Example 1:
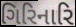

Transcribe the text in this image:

ગિરિનારિ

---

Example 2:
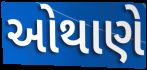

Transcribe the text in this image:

ઓથાણે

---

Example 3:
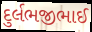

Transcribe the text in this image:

દુર્લભજીભાઈ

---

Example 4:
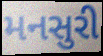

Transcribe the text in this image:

મનસુરી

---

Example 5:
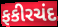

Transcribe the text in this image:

ફકીરચંદ